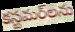
కస్టమర్‌లను